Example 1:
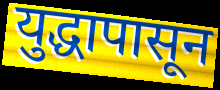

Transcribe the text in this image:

युद्धापासून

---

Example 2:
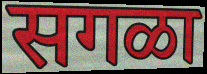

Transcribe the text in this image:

सगळा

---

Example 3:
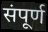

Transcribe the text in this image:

संपूर्ण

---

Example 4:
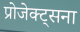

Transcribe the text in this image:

प्रोजेक्ट्सना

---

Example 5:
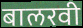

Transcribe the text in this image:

बालरवी